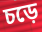
চড়ে